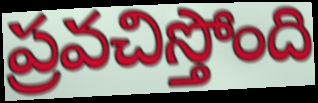
ప్రవచిస్తోంది